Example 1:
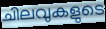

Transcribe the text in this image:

ചിലവുകളുടെ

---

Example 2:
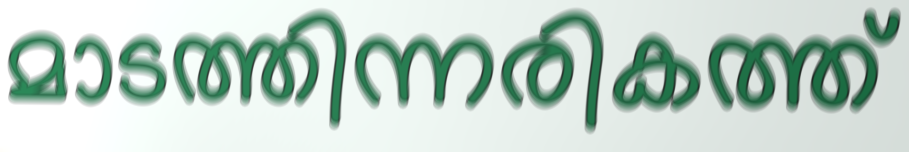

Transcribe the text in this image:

മാടത്തിന്നരികത്ത്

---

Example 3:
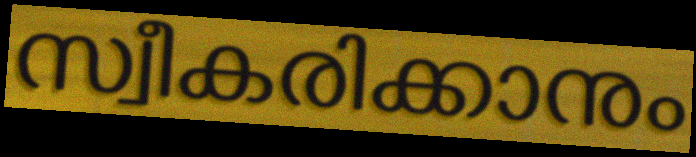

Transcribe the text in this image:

സ്വീകരിക്കാനും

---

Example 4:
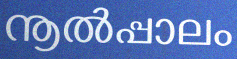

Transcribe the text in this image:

നൂൽപ്പാലം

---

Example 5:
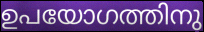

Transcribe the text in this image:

ഉപയോഗത്തിനു